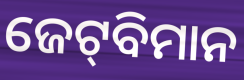
ଜେଟ୍‌ବିମାନ